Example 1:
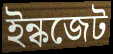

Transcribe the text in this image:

ইন্কজেট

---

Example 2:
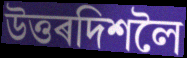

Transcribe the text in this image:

উত্তৰদিশলৈ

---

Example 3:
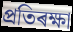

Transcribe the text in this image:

প্ৰতিৰক্ষা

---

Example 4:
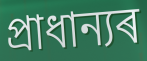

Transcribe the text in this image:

প্ৰাধান্যৰ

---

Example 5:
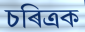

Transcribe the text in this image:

চৰিত্ৰক